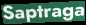
Saptraga